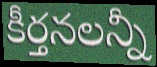
కీర్తనలన్నీ